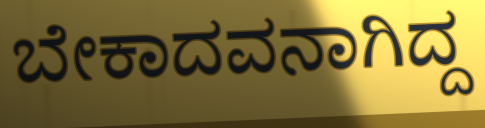
ಬೇಕಾದವನಾಗಿದ್ದ